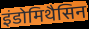
इंडोमिथैसिन